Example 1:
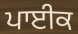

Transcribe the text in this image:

ਪਾਈਕ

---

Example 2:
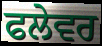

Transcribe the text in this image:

ਫਲੇਵਰ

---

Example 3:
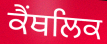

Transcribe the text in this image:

ਕੈਂਥਲਿਕ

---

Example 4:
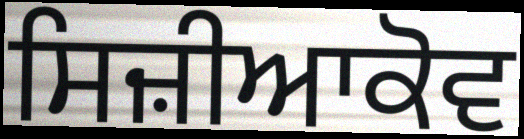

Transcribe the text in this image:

ਸਿਜ਼ੀਆਕੋਵ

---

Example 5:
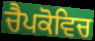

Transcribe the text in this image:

ਚੈਪਕੋਵਿਚ